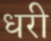
धरी